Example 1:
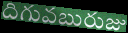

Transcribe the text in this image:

దిగువబురుజు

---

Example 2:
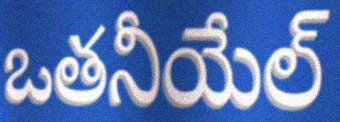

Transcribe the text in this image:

ఒతనీయేల్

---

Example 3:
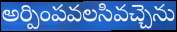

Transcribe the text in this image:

అర్పింపవలసివచ్చెను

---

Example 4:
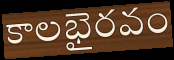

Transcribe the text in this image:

కాలభైరవం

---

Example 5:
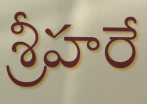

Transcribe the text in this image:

శ్రీహరే